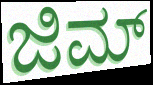
ಜಿಮ್